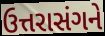
ઉત્તરાસંગને